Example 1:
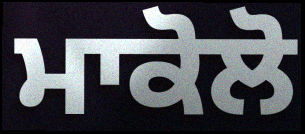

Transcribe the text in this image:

ਮਾਕੋਲੋ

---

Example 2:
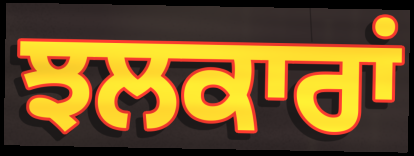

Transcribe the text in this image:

ਝਲਕਾਰਾਂ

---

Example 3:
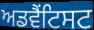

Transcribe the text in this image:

ਅਡਵੈਂਟਿਸਟ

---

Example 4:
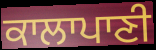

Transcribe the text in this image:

ਕਾਲਾਪਾਣੀ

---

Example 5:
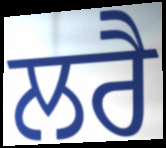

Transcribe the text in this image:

ਲਰੈ